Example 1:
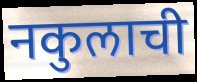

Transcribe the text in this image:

नकुलाची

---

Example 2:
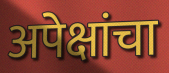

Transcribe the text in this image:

अपेक्षांचा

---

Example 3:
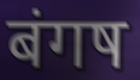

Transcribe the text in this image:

बंगष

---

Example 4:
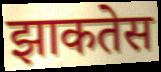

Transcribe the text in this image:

झाकतेस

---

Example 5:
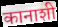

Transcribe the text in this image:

कानाशी